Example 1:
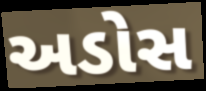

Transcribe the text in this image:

અડોસ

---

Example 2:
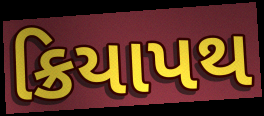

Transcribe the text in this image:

ક્રિયાપથ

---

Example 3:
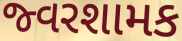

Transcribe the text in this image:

જ્વરશામક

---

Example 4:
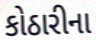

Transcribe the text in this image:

કોઠારીના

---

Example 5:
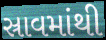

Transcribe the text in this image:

સ્રાવમાંથી